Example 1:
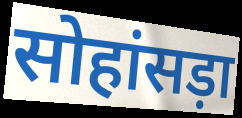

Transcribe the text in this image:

सोहांसड़ा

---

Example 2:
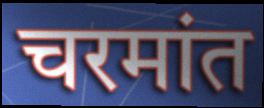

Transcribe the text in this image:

चरमांत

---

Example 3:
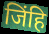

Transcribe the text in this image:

जिंहि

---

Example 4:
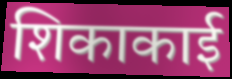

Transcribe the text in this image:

शिकाकाई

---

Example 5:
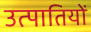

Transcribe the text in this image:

उत्पातियों